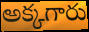
అక్కగారు